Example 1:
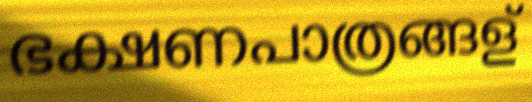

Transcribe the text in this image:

ഭക്ഷണപാത്രങ്ങള്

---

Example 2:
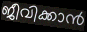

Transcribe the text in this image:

ജീവിക്കാൻ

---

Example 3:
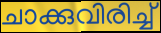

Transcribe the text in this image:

ചാക്കുവിരിച്ച്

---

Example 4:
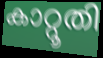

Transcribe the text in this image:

കാറ്റൂതി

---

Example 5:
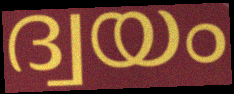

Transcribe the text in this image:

ദ്വയം